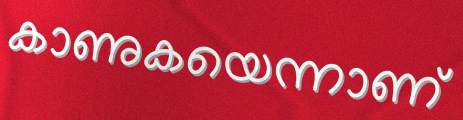
കാണുകയെന്നാണ്